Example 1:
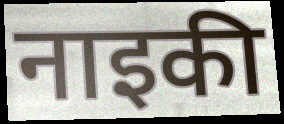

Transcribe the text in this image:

नाइकी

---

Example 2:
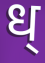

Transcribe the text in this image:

ध्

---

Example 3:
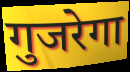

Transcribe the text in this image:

गुजरेगा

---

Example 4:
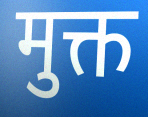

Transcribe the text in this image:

मुक्त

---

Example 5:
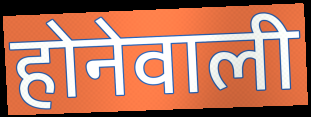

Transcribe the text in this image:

होनेवाली